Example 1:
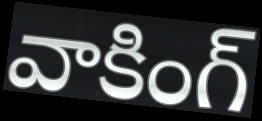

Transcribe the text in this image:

వాకింగ్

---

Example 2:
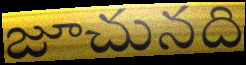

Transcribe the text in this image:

జూచునది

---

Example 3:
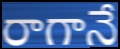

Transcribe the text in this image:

రాగానే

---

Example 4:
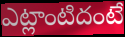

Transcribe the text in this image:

ఎట్లాంటిదంటే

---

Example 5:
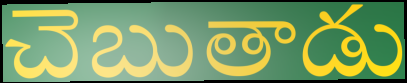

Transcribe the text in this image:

చెబుతాడు